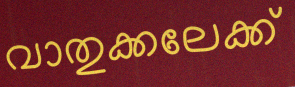
വാതുക്കലേക്ക്